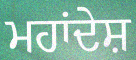
ਮਹਾਂਦੇਸ਼